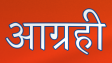
आग्रही